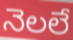
నెలలే